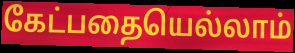
கேட்பதையெல்லாம்